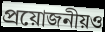
প্রয়োজনীয়ও